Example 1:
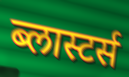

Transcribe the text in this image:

ब्लास्टर्स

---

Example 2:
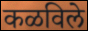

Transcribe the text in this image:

कळविले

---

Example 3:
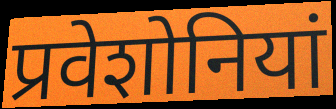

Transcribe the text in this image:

प्रवेशोनियां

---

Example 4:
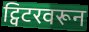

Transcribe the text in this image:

ट्विटरवरून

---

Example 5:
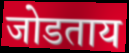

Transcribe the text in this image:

जोडताय